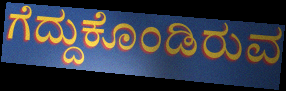
ಗೆದ್ದುಕೊಂಡಿರುವ